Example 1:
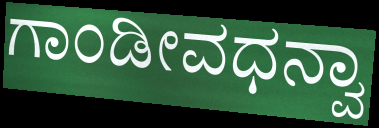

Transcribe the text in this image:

ಗಾಂಡೀವಧನ್ವಾ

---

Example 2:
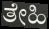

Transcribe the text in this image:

ತೇಹಿ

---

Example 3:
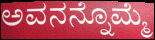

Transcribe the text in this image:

ಅವನನ್ನೊಮ್ಮೆ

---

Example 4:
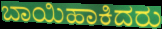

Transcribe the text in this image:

ಬಾಯಿಹಾಕಿದರು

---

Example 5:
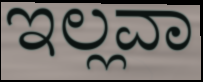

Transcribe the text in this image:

ಇಲ್ಲವಾ